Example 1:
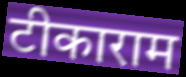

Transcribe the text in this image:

टीकाराम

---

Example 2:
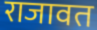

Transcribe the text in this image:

राजावत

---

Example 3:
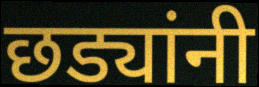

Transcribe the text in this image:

छड्यांनी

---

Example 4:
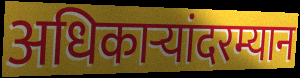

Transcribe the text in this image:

अधिकाऱ्यांदरम्यान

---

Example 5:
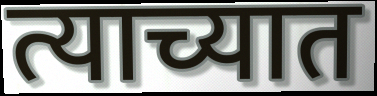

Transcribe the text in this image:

त्याच्यात